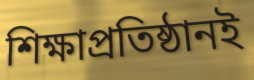
শিক্ষাপ্রতিষ্ঠানই